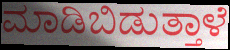
ಮಾಡಿಬಿಡುತ್ತಾಳೆ